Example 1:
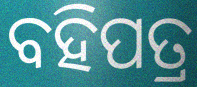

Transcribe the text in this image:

ବହିପତ୍ର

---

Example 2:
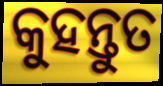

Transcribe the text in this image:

କୁହନ୍ତୁତ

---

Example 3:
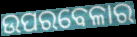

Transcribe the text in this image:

ଉପରବେଳାର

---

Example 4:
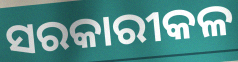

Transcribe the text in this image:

ସରକାରୀକଳ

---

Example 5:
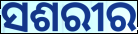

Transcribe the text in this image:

ସଶରୀର